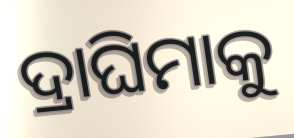
ଦ୍ରାଘିମାକୁ